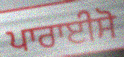
ਪਾਰਾਈਸੋ